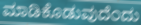
ಮಾಡಿಕೊಡುವುದೆಂದು